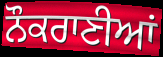
ਨੌਕਰਾਣੀਆਂ